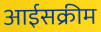
आईसक्रीम